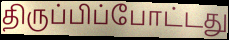
திருப்பிப்போட்டது